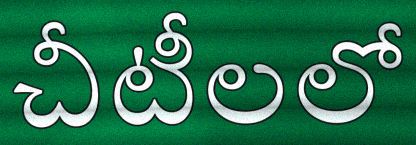
చీటీలలో